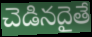
చెడినదైతే